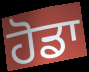
ਹੋਡਾ